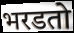
भरडतो